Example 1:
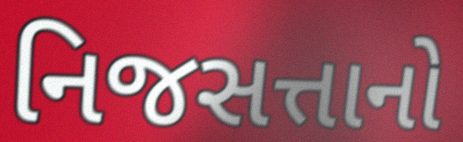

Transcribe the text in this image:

નિજસત્તાનો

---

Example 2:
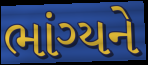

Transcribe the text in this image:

ભાંગ્યને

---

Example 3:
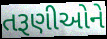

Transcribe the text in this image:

તરૂણીઓને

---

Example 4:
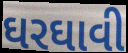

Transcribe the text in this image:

ઘરઘાવી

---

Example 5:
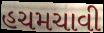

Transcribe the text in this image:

હચમચાવી